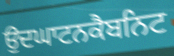
ਉਦਘਾਟਨਕੈਬਨਿਟ